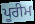
ਪੂਰੀਮ